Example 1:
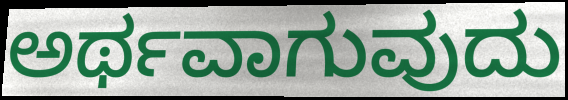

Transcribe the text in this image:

ಅರ್ಥವಾಗುವುದು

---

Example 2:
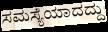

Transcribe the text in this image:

ಸಮಸ್ಯೆಯಾದದ್ದು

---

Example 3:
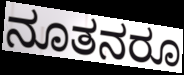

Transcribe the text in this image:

ನೂತನರೂ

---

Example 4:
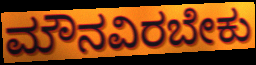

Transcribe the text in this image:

ಮೌನವಿರಬೇಕು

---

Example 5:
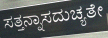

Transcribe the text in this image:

ಸತ್ತನ್ನಾಸದುಚ್ಯತೇ